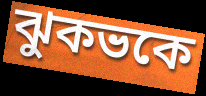
ঝুকভকে